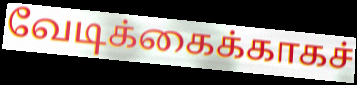
வேடிக்கைக்காகச்